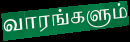
வாரங்களும்